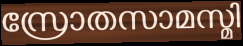
സ്രോതസാമസ്മി